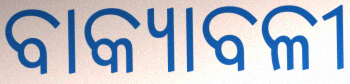
ବାକ୍ୟାବଳୀ